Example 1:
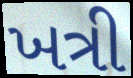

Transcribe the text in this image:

ખત્રી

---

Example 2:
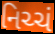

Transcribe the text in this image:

નિચ્ચં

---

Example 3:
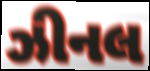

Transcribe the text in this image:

ઝીનલ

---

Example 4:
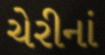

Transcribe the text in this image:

ચેરીનાં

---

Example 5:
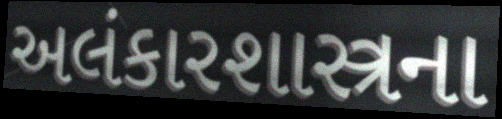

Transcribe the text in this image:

અલંકારશાસ્ત્રના